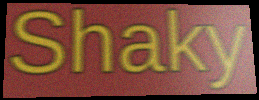
Shaky